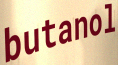
butanol